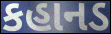
કહાનડ